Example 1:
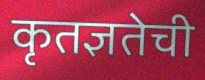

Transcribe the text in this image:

कृतज्ञतेची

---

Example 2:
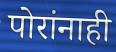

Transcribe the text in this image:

पोरांनाही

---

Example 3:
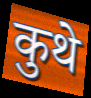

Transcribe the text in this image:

कुथे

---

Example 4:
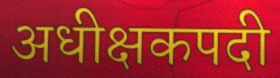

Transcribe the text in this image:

अधीक्षकपदी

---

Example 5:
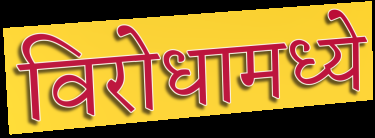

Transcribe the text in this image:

विरोधामध्ये